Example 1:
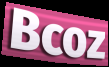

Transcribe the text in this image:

Bcoz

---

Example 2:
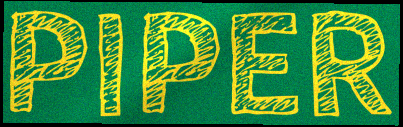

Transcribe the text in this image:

PIPER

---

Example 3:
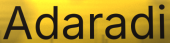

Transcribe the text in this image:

Adaradi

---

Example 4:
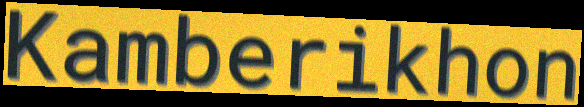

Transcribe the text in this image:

Kamberikhon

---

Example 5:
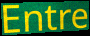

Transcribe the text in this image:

Entre